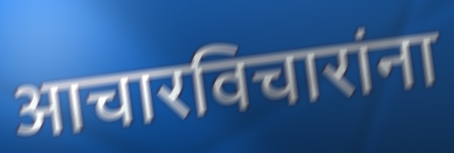
आचारविचारांना